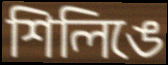
শিলিঙে